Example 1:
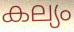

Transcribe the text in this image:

കല്യം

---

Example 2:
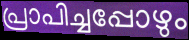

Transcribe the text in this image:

പ്രാപിച്ചപ്പോഴും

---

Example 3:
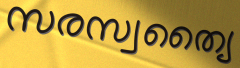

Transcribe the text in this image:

സരസ്വത്യൈ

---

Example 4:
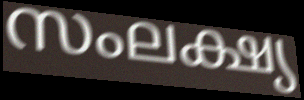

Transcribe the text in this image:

സംലക്ഷ്യ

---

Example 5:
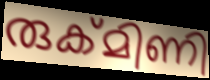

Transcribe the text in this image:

രുക്മിണി